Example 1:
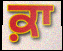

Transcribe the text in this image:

ਕ਼ਾ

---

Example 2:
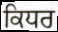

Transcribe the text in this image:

ਕਿਧਰ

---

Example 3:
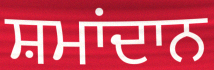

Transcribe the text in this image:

ਸ਼ਮਾਂਦਾਨ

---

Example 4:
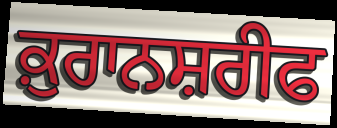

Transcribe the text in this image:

ਕ਼ੁਰਾਨਸ਼ਰੀਫ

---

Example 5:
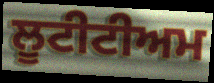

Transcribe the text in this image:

ਲੂਟੀਟੀਅਮ